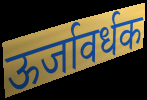
ऊर्जावर्धक